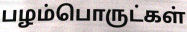
பழம்பொருட்கள்